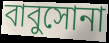
বাবুসোনা